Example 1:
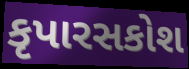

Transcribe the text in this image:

કૃપારસકોશ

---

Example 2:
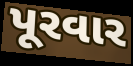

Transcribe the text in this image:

પૂરવાર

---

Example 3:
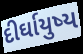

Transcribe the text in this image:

દીર્ઘાયુષ્ય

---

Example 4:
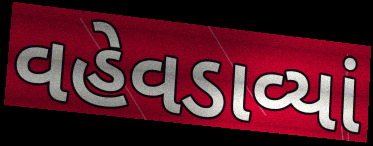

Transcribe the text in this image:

વહેવડાવ્યાં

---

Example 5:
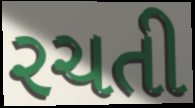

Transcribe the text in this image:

રચતી